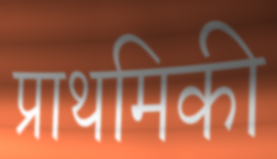
प्राथमिकी